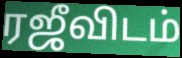
ரஜீவிடம்